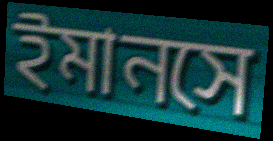
ইমানসে